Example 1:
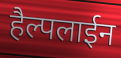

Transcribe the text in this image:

हैल्पलाईन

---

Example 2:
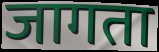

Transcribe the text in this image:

जागता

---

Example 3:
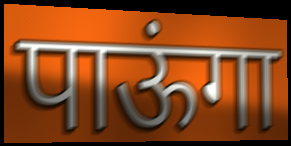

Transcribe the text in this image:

पाऊंगा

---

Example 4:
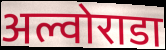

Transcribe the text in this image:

अल्वोराडा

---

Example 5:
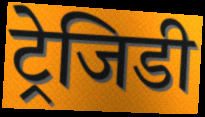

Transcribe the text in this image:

ट्रेजिडी